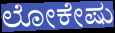
ಲೋಕೇಷು